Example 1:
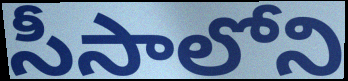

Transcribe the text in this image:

సీసాలోని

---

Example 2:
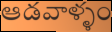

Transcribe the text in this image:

ఆడవాళ్ళం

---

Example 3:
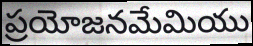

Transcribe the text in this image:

ప్రయోజనమేమియు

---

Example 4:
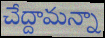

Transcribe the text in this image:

చేద్దామన్నా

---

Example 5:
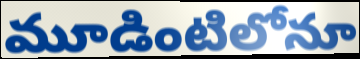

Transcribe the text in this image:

మూడింటిలోనూ